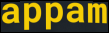
appam